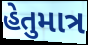
હેતુમાત્ર